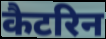
कैटरिन